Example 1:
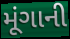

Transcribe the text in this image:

મૂંગાની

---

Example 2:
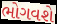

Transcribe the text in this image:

ભોગવશે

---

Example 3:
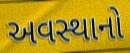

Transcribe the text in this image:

અવસ્થાનો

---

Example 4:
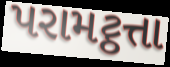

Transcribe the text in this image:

પરામટ્ઠત્તા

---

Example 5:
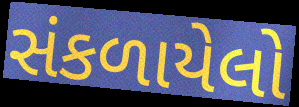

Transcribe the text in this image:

સંકળાયેલો